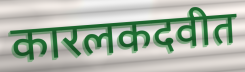
कारलकदवीत